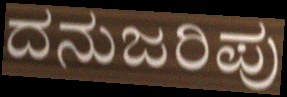
ದನುಜರಿಪು